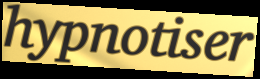
hypnotiser